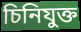
চিনিযুক্ত